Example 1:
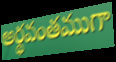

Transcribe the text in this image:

అర్థవంతముగా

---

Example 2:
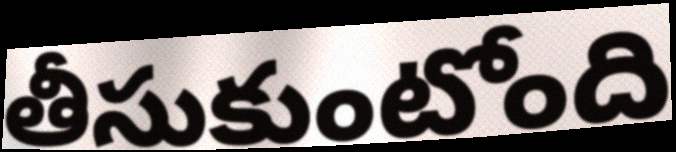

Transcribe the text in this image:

తీసుకుంటోంది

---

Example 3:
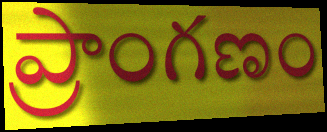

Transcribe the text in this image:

ప్రాంగణం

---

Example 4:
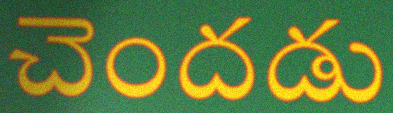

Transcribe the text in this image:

చెందడు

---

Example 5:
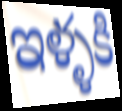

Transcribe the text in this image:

ఇళ్ళకి